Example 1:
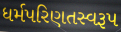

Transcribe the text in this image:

ધર્મપરિણતસ્વરૂપ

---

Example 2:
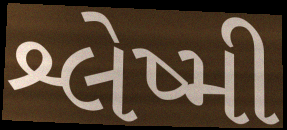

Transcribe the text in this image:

શ્લેષ્મી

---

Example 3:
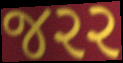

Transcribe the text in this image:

જરર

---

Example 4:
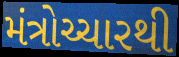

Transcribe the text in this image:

મંત્રોચ્ચારથી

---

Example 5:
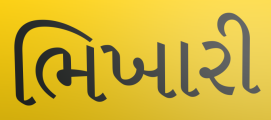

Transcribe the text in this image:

ભિખારી